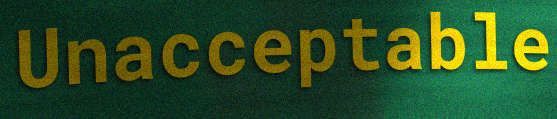
Unacceptable